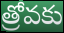
త్రోవకు